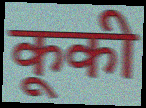
कूकी